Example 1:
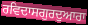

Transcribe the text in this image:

ਰਵਿਦਾਸਗੁਰਦੁਆਰਾ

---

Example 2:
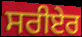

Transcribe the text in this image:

ਸਰੀਏਰ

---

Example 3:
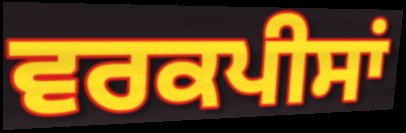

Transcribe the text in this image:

ਵਰਕਪੀਸਾਂ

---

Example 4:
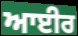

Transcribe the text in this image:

ਆਈਰ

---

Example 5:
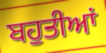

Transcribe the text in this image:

ਬਹੁਤੀਆਂ